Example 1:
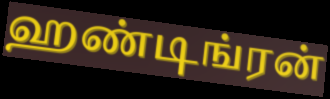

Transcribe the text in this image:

ஹண்டிங்ரன்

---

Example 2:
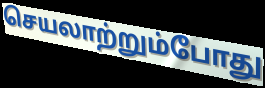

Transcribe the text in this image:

செயலாற்றும்போது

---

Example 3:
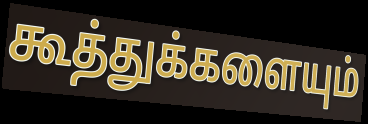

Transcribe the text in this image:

கூத்துக்களையும்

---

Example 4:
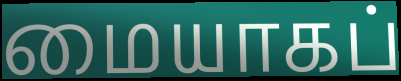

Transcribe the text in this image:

மையாகப்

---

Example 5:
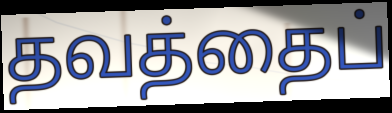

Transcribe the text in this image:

தவத்தைப்